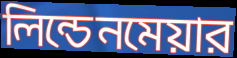
লিন্ডেনমেয়ার